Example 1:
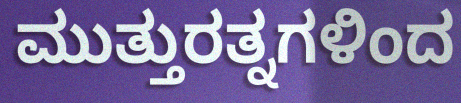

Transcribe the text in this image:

ಮುತ್ತುರತ್ನಗಳಿಂದ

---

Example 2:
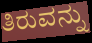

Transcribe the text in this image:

ತಿರುವನ್ನು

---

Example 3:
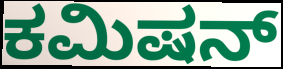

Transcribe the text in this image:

ಕಮಿಷನ್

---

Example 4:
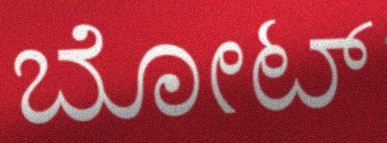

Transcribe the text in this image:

ಬೋಟ್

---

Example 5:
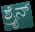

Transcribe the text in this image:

ಶ್ರೈನ್